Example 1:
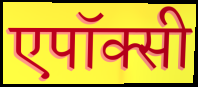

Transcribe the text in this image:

एपॉक्सी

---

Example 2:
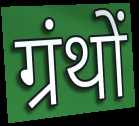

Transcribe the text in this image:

ग्रंथों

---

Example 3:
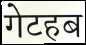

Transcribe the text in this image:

गेटहब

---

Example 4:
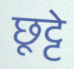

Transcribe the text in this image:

छूट्टे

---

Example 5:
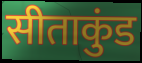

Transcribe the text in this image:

सीताकुंड